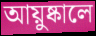
আয়ুষ্কালে